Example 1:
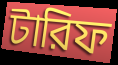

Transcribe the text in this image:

টারিফ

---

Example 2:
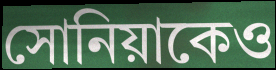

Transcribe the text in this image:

সোনিয়াকেও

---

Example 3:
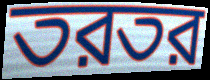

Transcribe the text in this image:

তরতর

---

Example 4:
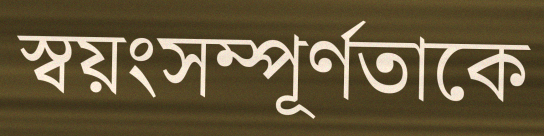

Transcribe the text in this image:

স্বয়ংসম্পূর্ণতাকে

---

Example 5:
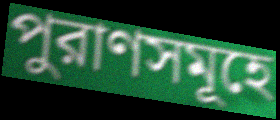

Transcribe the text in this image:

পুরাণসমূহে